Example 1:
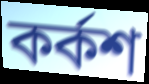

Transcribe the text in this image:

কর্কশ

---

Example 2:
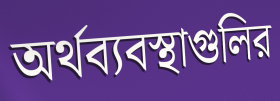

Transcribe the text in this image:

অর্থব্যবস্থাগুলির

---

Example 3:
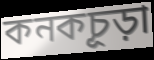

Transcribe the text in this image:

কনকচূড়া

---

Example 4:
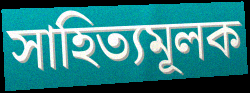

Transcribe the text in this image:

সাহিত্যমূলক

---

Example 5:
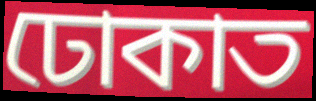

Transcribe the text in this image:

ঢোকাত